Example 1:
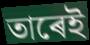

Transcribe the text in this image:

তাৰেই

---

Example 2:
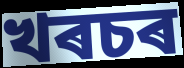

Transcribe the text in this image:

খৰচৰ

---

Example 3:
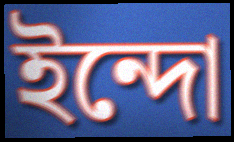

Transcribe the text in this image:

ইন্দো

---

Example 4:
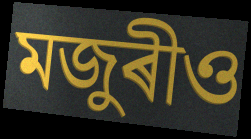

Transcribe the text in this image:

মজুৰীও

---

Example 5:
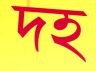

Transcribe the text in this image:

দহ